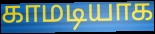
காமடியாக